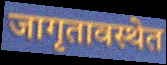
जागृतावस्थेत